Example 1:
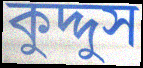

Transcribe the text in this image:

কুদ্দুস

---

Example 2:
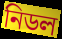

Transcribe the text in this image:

নিডল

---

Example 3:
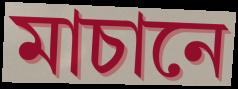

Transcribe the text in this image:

মাচানে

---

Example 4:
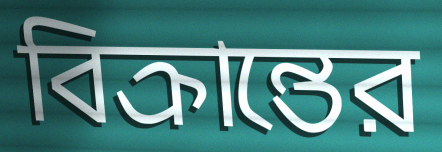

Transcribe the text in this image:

বিক্রান্তের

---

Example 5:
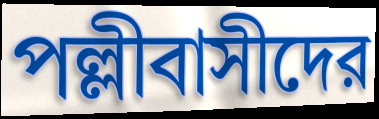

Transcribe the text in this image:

পল্লীবাসীদের